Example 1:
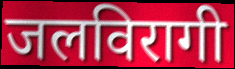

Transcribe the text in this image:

जलविरागी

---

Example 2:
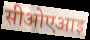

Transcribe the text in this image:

सीओएआइ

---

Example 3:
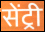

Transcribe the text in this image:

सेंट्री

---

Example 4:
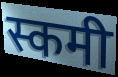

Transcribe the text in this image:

स्कमी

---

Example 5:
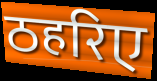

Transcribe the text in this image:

ठहरिए